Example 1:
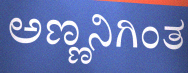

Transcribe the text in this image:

ಅಣ್ಣನಿಗಿಂತ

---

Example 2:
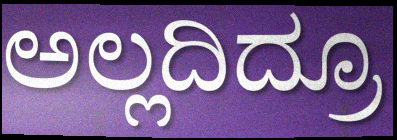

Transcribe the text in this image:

ಅಲ್ಲದಿದ್ರೂ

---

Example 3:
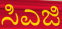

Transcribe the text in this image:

ಸಿಎಜಿ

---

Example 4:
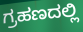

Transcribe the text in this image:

ಗ್ರಹಣದಲ್ಲಿ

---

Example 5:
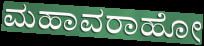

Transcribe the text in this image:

ಮಹಾವರಾಹೋ